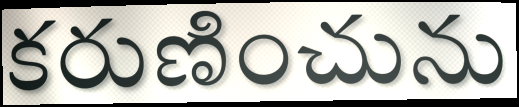
కరుణించును